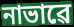
নাভাৱে